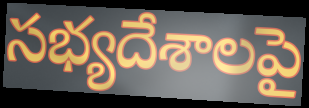
సభ్యదేశాలపై